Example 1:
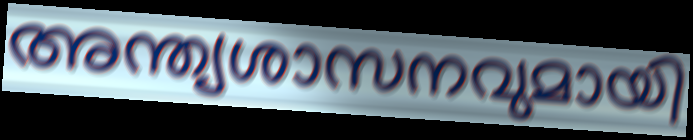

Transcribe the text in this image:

അന്ത്യശാസനവുമായി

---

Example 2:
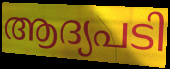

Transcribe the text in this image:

ആദ്യപടി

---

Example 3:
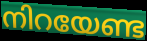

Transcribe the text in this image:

നിറയേണ്ട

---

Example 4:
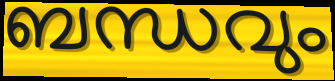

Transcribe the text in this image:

ബന്ധവും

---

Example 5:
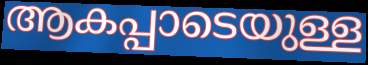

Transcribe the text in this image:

ആകപ്പാടെയുള്ള